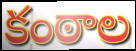
కంఠాల